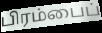
பிரம்பைப்